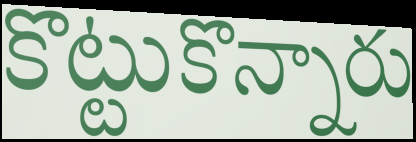
కొట్టుకొన్నారు